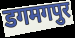
डगमगपुर